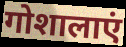
गोशालाएं